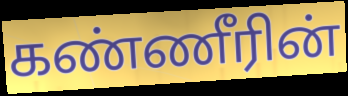
கண்ணீரின்